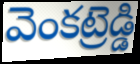
వెంకట్రెడ్డి